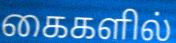
கைகளில்